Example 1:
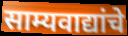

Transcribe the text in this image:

साम्यवाद्यांचे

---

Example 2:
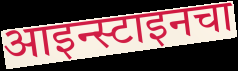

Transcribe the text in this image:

आइन्स्टाइनचा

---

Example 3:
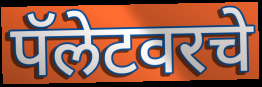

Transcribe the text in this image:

पॅलेटवरचे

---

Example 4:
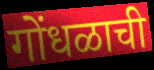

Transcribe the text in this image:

गोंधळाची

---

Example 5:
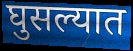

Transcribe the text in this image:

घुसल्यात